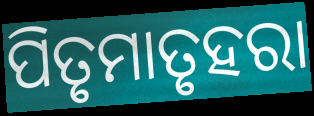
ପିତୃମାତୃହରା